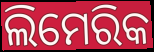
ଲିମେରିକ